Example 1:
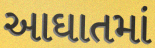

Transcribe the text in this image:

આઘાતમાં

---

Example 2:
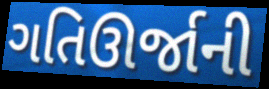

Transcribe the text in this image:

ગતિઊર્જાની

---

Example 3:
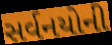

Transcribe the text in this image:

સર્વનયોની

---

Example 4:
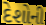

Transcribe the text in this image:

દેશોની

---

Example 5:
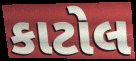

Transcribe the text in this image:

કાટોલ